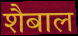
शैबाल